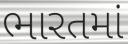
ભારતમાં